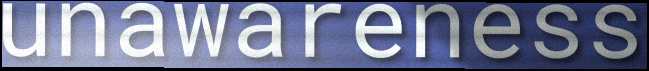
unawareness